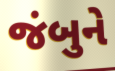
જંબુને